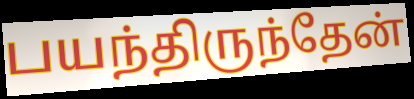
பயந்திருந்தேன்